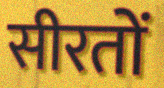
सीरतों